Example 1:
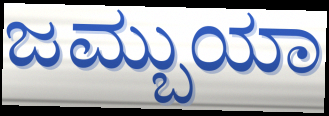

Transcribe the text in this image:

ಜಮ್ಬುಯಾ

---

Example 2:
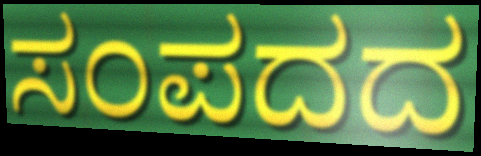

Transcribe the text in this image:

ಸಂಪದದ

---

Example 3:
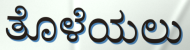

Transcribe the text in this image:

ತೊಳೆಯಲು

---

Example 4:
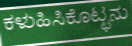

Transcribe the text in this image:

ಕಳುಹಿಸಿಕೊಟ್ಟನು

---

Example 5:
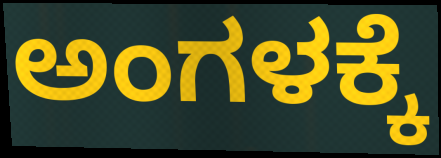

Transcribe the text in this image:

ಅಂಗಳಕ್ಕೆ